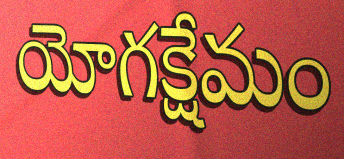
యోగక్షేమం